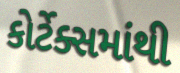
કોર્ટેક્સમાંથી